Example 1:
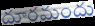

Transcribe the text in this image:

దూరమందు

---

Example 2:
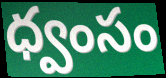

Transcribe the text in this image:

ధ్వంసం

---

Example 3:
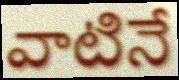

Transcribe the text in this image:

వాటినే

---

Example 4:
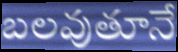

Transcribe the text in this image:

బలవుతూనే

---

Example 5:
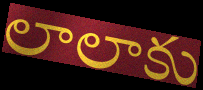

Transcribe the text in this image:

లాలాకు